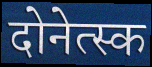
दोनेत्स्क